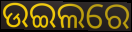
ଉଇଲରେ